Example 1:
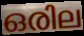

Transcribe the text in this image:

ഒരില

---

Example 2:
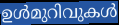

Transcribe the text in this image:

ഉൾമുറിവുകൾ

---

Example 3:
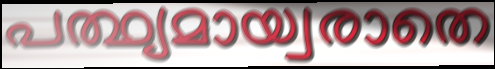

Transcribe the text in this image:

പത്ഥ്യമായ്വരാതെ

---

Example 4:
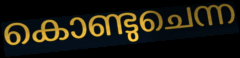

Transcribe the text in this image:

കൊണ്ടുചെന്ന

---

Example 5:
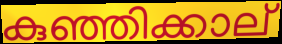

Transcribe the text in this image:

കുഞ്ഞിക്കാല്